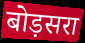
बोड़सरा